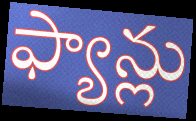
ఫ్యాన్లు